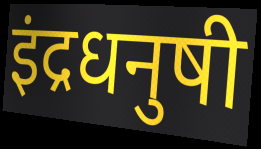
इंद्रधनुषी